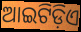
ଆଇଟିଡ଼ିଏ